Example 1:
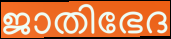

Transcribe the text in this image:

ജാതിഭേദ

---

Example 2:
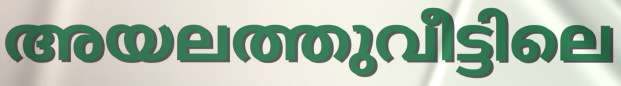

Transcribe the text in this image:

അയലത്തുവീട്ടിലെ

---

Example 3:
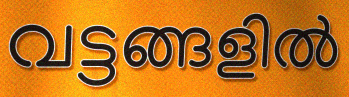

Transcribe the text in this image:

വട്ടങ്ങളിൽ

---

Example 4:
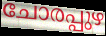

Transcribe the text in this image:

ചോരപ്പുഴ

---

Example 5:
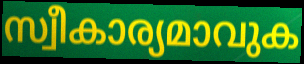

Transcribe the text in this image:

സ്വീകാര്യമാവുക